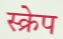
स्क्रेप